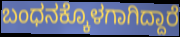
ಬಂಧನಕ್ಕೊಳಗಾಗಿದ್ದಾರೆ